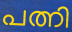
പത്നി